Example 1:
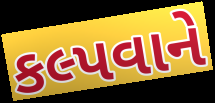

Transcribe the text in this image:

કલ્પવાને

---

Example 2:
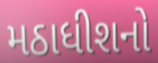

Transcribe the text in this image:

મઠાધીશનો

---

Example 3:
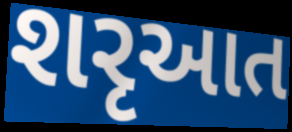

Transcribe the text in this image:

શરૃઆત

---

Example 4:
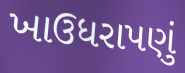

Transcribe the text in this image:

ખાઉધરાપણું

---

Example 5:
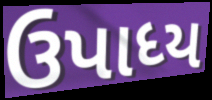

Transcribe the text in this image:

ઉપાધ્ય